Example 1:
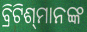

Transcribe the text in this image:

ବ୍ରିଟିଶ୍‌ମାନଙ୍କ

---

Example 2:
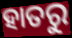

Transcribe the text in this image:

ହାତରୁ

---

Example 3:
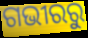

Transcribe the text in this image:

ଗଭୀରରୁ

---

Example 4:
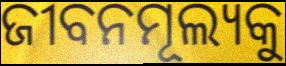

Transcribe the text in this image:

ଜୀବନମୂଲ୍ୟକୁ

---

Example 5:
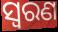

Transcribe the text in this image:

ସ୍ୱରଣ